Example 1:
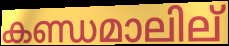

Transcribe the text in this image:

കണ്ഡമാലില്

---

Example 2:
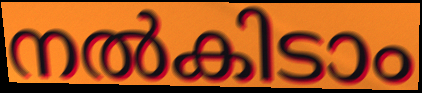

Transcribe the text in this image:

നൽകിടാം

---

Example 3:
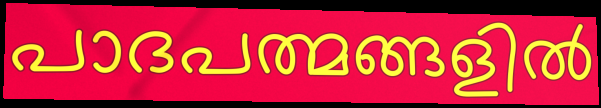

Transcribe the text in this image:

പാദപത്മങ്ങളിൽ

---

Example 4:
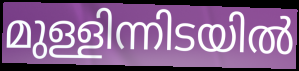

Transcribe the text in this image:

മുള്ളിന്നിടയിൽ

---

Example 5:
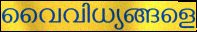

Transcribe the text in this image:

വൈവിധ്യങ്ങളെ